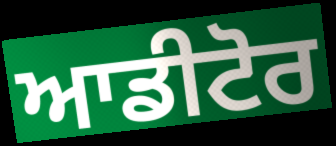
ਆਡੀਟੋਰ